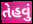
તેહવું